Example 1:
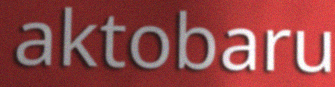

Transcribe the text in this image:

aktobaru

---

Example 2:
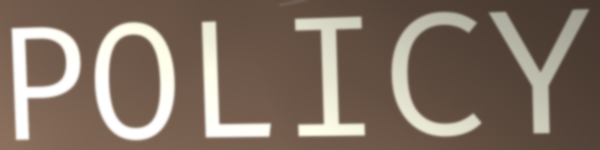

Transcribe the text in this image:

POLICY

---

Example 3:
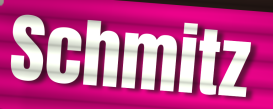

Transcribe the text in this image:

Schmitz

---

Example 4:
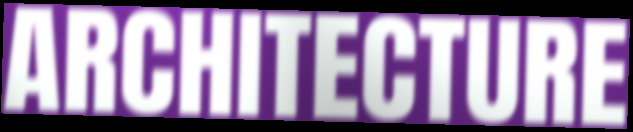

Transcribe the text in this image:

ARCHITECTURE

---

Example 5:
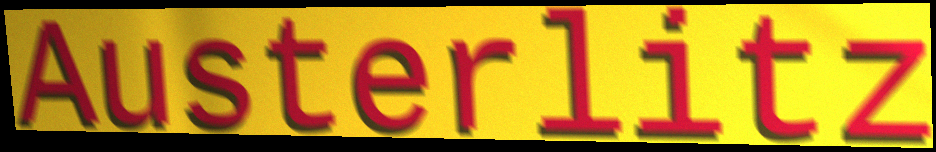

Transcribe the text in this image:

Austerlitz